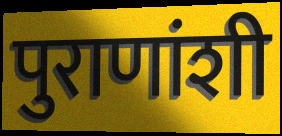
पुराणांशी